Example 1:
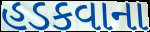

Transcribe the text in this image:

હડકવાના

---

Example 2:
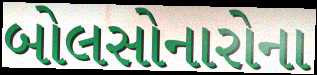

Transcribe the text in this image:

બોલસોનારોના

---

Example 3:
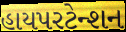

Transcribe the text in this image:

હાયપરટેન્શન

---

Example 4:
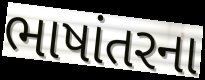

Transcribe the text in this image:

ભાષાંતરના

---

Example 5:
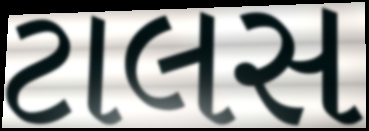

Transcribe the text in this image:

ટાલસ